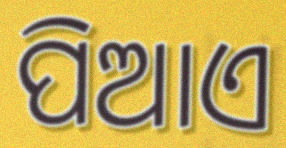
ପିଆଏ